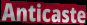
Anticaste